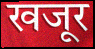
खजूर